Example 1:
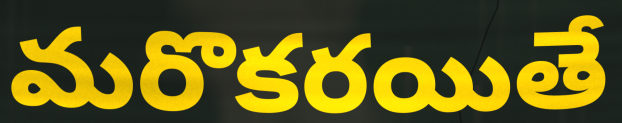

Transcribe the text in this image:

మరొకరయితే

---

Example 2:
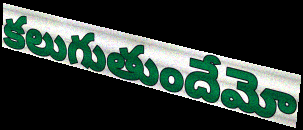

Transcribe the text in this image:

కలుగుతుందేమో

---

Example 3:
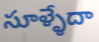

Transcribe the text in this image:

సూళ్ళేదా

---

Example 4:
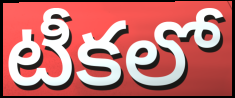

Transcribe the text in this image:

టీకలో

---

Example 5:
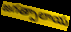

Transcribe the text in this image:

జగత్పాలాయ